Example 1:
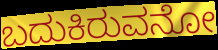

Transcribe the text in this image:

ಬದುಕಿರುವನೋ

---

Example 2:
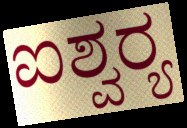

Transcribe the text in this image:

ಐಶ್ವರ‍್ಯ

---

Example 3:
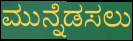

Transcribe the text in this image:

ಮುನ್ನೆಡಸಲು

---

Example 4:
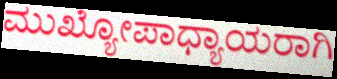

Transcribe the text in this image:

ಮುಖ್ಯೋಪಾಧ್ಯಾಯರಾಗಿ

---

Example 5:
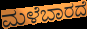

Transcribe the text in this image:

ಮಳೆಬಾರದೆ